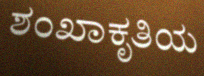
ಶಂಖಾಕೃತಿಯ